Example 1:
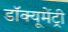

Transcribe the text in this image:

डॉक्‍यूमेंट्री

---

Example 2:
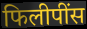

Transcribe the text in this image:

फिलीपींस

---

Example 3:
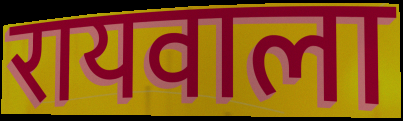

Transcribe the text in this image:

रायवाला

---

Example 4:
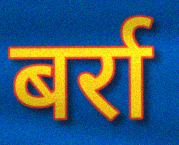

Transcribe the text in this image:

बर्रा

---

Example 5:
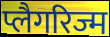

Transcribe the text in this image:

प्लैगरिज्म